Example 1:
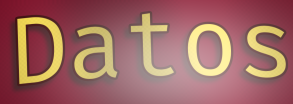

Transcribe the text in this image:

Datos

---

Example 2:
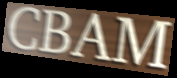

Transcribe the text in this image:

CBAM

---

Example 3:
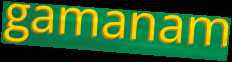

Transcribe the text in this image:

gamanam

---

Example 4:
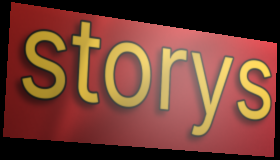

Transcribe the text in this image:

storys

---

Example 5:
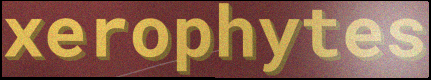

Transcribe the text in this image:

xerophytes